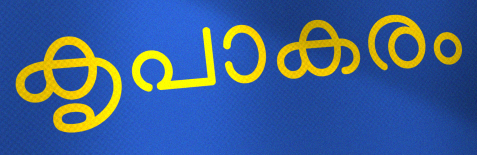
കൃപാകരം